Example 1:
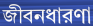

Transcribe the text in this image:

জীবনধারণা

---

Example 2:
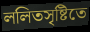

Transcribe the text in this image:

ললিতসৃষ্টিতে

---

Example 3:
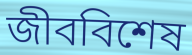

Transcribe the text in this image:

জীববিশেষ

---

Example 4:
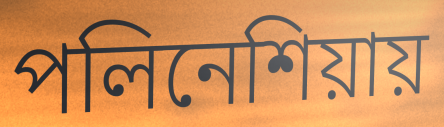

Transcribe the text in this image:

পলিনেশিয়ায়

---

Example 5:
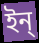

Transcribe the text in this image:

ইন্